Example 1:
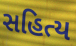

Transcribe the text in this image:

સહિત્ય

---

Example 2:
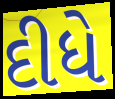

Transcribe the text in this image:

દીધે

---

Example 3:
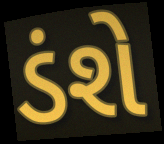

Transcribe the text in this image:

ડંશે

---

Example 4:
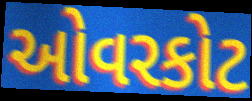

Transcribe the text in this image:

ઓવરકોટ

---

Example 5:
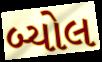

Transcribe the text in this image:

બ્યોલ